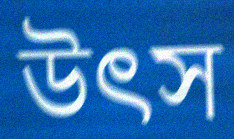
উৎস